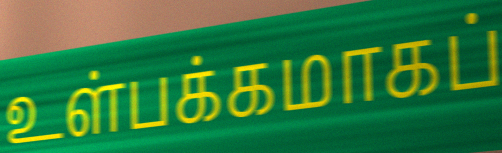
உள்பக்கமாகப்